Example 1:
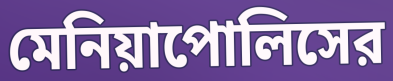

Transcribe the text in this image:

মেনিয়াপোলিসের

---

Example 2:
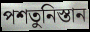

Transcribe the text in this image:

পশতুনিস্তান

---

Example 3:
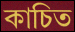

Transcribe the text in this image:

কাচিত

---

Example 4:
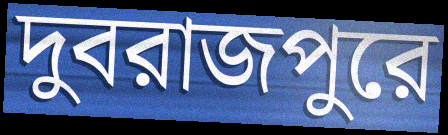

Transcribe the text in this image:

দুবরাজপুরে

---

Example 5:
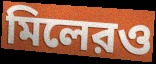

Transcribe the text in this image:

মিলেরও